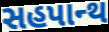
સહપાન્થ